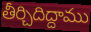
తీర్చిదిద్దాము